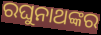
ରଘୁନାଥଙ୍କର